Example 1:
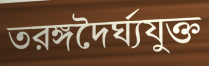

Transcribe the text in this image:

তরঙ্গদৈর্ঘ্যযুক্ত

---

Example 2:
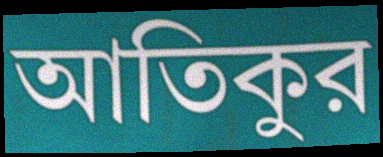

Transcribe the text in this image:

আতিকুর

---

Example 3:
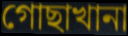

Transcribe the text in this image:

গোছাখানা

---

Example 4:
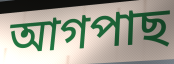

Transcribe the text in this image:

আগপাছ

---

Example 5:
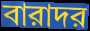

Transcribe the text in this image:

বারাদর